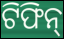
ଟିଫିନ୍